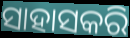
ସାହାସକରି